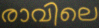
രാവിലെ